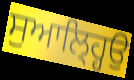
ਸੁਆਲ੍ਹ੍ਹਿਉ